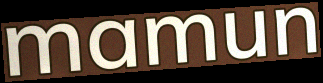
mamun